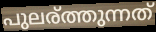
പുലര്ത്തുന്നത്